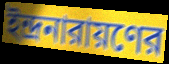
ইন্দ্রনারায়ণের